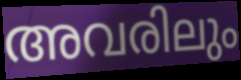
അവരിലും